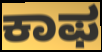
ಕಾಫ